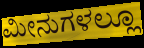
ಮೀನುಗಳಲ್ಲೂ